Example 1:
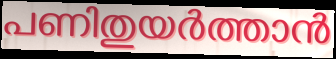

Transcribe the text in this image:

പണിതുയർത്താൻ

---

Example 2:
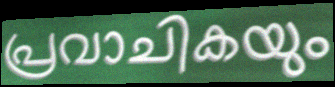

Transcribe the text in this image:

പ്രവാചികയും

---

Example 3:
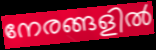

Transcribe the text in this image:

നേരങ്ങളിൽ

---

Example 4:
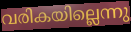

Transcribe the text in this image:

വരികയില്ലെന്നു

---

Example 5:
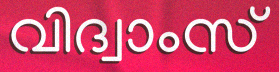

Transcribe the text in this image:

വിദ്വാംസ്